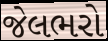
જેલભરો